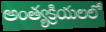
అంత్యక్రియలలో